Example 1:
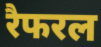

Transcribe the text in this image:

रैफरल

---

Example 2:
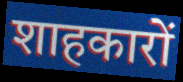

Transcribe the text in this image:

शाहकारों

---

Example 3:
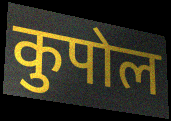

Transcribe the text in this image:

कुपोल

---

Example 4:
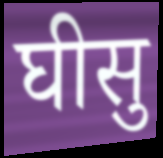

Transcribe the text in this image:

घीसु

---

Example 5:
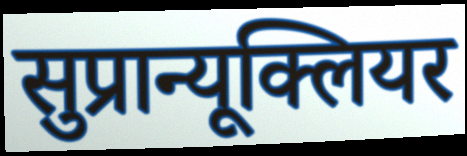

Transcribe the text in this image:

सुप्रान्यूक्लियर